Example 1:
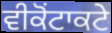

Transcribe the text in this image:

ਵੀਕੋਂਟਾਕਟੇ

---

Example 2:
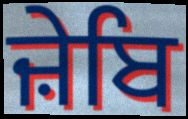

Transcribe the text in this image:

ਜ਼ੇਬਿ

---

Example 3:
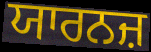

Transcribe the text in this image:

ਯਾਰਨਜ਼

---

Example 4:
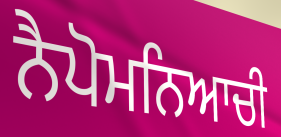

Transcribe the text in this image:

ਨੈਪੋਮਨਿਆਚੀ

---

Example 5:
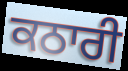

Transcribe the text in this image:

ਕਠਾਰੀ